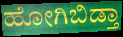
ಹೋಗಿಬಿಡ್ತಾ